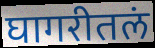
घागरीतलं